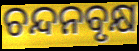
ଚନ୍ଦନବୃକ୍ଷ